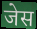
जेस